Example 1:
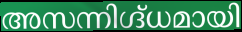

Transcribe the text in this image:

അസന്നിഗ്ദ്ധമായി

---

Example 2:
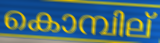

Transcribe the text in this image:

കൊമ്പില്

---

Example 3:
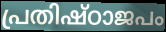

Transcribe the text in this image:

പ്രതിഷ്ഠാജപം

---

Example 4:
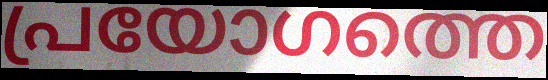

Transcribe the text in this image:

പ്രയോഗത്തെ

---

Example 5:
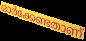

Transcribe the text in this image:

ഓർക്കേണ്ടതാണ്